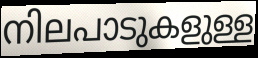
നിലപാടുകളുള്ള